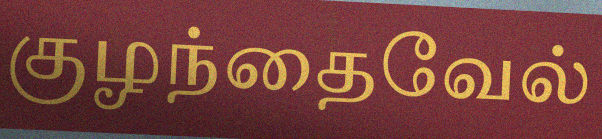
குழந்தைவேல்